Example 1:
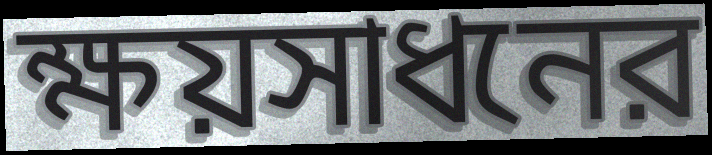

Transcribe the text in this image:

ক্ষয়সাধনের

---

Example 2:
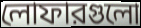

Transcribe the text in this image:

লোফারগুলো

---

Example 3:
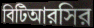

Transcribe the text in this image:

বিটিআরসির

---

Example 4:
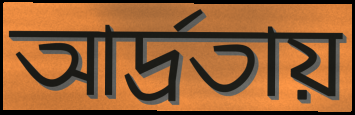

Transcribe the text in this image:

আর্দ্রতায়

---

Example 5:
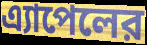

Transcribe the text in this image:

এ্যাপেলের